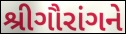
શ્રીગૌરાંગને